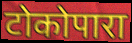
टोकोपारा